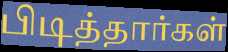
பிடித்தார்கள்